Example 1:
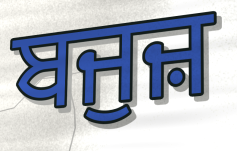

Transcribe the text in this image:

ਬਜੁਜ਼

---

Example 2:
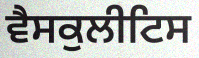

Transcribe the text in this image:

ਵੈਸਕੁਲੀਟਿਸ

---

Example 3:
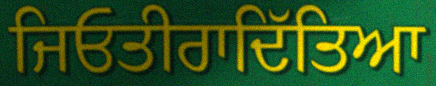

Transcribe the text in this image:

ਜਿਓਤੀਰਾਦਿੱਤਿਆ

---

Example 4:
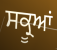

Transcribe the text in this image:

ਸਕ੍ਰੂਆਂ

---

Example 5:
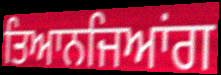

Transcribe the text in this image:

ਤਿਆਨਜਿਆਂਗ